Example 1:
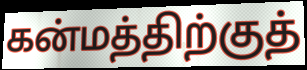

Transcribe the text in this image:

கன்மத்திற்குத்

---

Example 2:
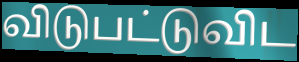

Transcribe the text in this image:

விடுபட்டுவிட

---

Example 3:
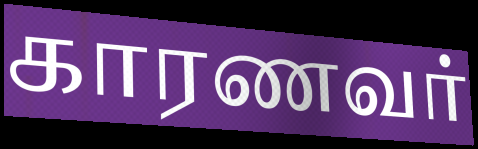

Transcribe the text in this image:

காரணவர்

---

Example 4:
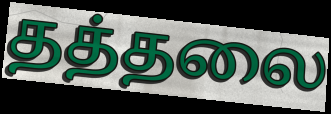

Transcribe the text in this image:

தத்தலை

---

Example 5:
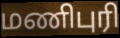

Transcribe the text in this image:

மணிபுரி